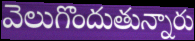
వెలుగొందుతున్నారు